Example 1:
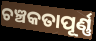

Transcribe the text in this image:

ଚଞ୍ଚକତାପୂର୍ଣ୍ଣ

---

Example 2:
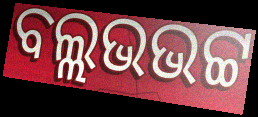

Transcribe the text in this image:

ବଲ୍ଲଭଭଟ୍ଟ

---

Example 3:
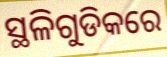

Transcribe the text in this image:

ସ୍ଥଳିଗୁଡିକରେ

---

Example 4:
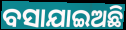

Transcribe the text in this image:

ବସାଯାଇଅଛି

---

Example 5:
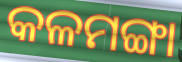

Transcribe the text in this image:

କଳମଙ୍ଗା